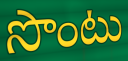
సొంటు